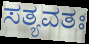
ಸತ್ಯವತಃ